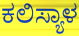
ಕಲಿಸ್ಯಾಳ